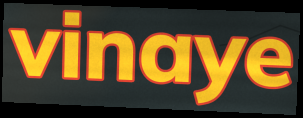
vinaye